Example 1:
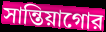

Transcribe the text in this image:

সান্তিয়াগোর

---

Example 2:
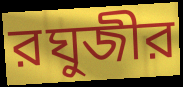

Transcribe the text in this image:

রঘুজীর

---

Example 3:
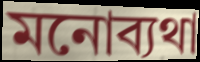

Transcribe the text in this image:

মনোব্যথা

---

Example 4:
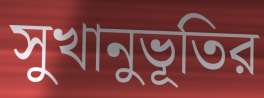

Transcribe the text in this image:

সুখানুভূতির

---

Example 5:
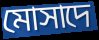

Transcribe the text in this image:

মোসাদে